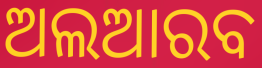
ଅଲଆରବ